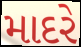
માદરે